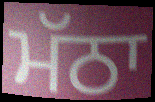
ਮੱਠਾ